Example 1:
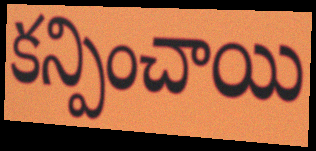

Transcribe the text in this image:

కన్పించాయి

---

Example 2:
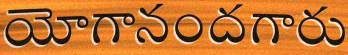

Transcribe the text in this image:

యోగానందగారు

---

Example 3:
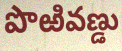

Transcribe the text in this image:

పొఱివణ్డు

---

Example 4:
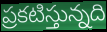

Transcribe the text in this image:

ప్రకటిస్తున్నది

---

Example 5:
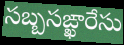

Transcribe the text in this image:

సబ్బసఙ్ఖారేసు